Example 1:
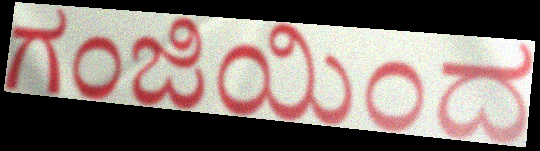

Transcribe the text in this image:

ಗಂಜಿಯಿಂದ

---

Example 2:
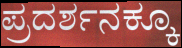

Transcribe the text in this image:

ಪ್ರದರ್ಶನಕ್ಕೂ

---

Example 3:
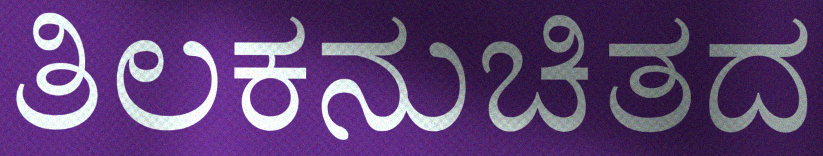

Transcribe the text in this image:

ತಿಲಕನುಚಿತದ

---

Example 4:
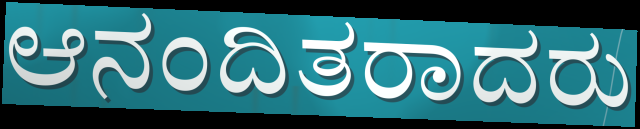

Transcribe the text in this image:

ಆನಂದಿತರಾದರು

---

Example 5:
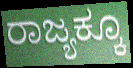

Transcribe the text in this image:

ರಾಜ್ಯಕ್ಕೂ